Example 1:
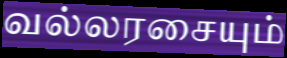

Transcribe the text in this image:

வல்லரசையும்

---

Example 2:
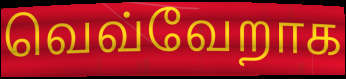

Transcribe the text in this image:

வெவ்வேறாக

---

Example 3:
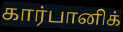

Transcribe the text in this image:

கார்பானிக்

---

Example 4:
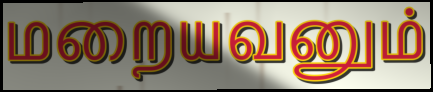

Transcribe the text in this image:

மறையவனும்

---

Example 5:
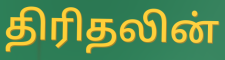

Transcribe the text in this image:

திரிதலின்